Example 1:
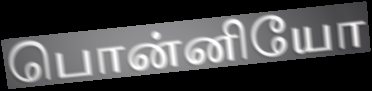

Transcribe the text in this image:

பொன்னியோ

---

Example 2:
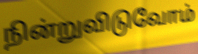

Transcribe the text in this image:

நின்றுவிடுவோம்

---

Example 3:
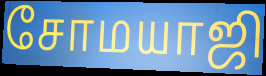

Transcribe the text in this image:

சோமயாஜி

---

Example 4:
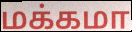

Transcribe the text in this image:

மக்கமா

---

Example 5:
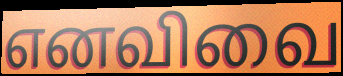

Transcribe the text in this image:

எனவிவை